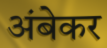
अंबेकर